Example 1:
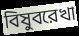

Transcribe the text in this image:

বিষুবরেখা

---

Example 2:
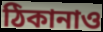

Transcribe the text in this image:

ঠিকানাও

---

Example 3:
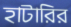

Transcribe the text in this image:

হাটারির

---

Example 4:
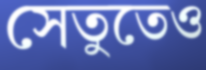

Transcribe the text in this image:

সেতুতেও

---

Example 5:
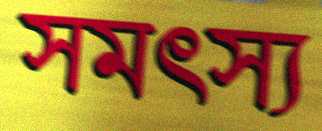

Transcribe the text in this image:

সমৎস্য